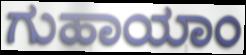
ಗುಹಾಯಾಂ